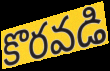
కొరవడి